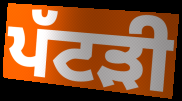
ਪੱਟੜੀ